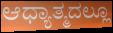
ಆಧ್ಯಾತ್ಮದಲ್ಲೂ